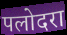
पलोदरा